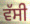
ਵੱਸੀ